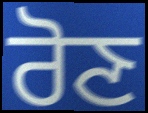
ਰੋਣ